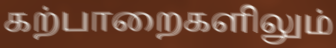
கற்பாறைகளிலும்